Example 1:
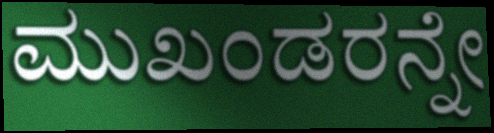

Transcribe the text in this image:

ಮುಖಂಡರನ್ನೇ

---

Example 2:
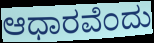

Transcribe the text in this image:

ಆಧಾರವೆಂದು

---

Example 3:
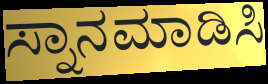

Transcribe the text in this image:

ಸ್ನಾನಮಾಡಿಸಿ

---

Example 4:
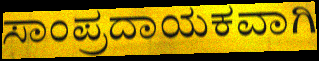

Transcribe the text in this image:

ಸಾಂಪ್ರದಾಯಕವಾಗಿ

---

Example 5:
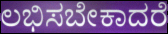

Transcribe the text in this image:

ಲಭಿಸಬೇಕಾದರೆ